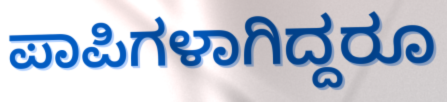
ಪಾಪಿಗಳಾಗಿದ್ದರೂ